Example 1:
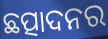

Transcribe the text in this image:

ଛତ୍ପାଦନର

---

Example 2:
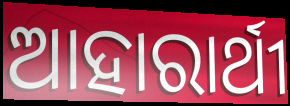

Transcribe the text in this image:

ଆହାରାର୍ଥୀ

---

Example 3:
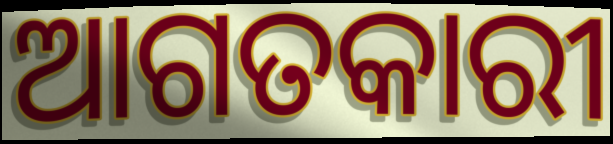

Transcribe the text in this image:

ଆଗତକାରୀ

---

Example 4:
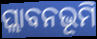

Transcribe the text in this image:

ପ୍ଲାବନଭୂମି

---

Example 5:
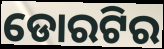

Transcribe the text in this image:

ଡୋରଟିର